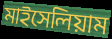
মাইসেলিয়াম